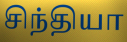
சிந்தியா